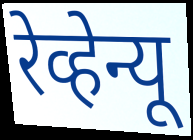
रेव्हेन्यू